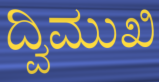
ದ್ವಿಮುಖಿ